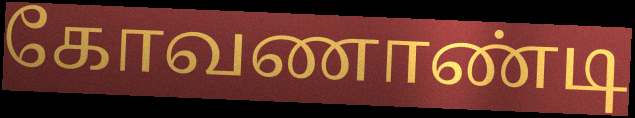
கோவணாண்டி